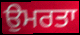
ਉਮਰਤਾ